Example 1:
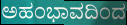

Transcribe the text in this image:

ಅಹಂಭಾವದಿಂದ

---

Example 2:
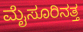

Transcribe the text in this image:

ಮೈಸೂರಿನತ್ತ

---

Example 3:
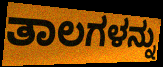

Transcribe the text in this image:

ತಾಲಗಳನ್ನು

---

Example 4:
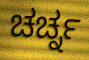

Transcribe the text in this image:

ಚರ್ಚ್ನ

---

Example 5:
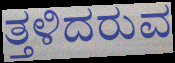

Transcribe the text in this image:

ತ್ತಳಿದರುವ